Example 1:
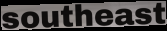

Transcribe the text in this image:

southeast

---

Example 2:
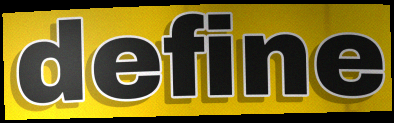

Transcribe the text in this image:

define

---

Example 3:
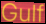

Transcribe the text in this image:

Gulf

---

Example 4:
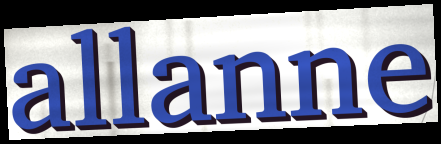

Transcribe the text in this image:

allanne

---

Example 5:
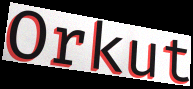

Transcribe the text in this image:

Orkut